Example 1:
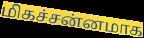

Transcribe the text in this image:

மிகச்சன்னமாக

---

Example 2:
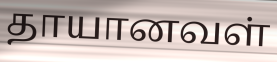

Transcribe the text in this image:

தாயானவள்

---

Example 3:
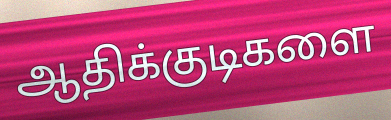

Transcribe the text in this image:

ஆதிக்குடிகளை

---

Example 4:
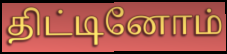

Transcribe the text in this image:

திட்டினோம்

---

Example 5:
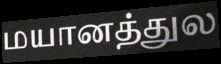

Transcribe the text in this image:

மயானத்துல